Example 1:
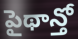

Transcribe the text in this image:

పైథాన్తో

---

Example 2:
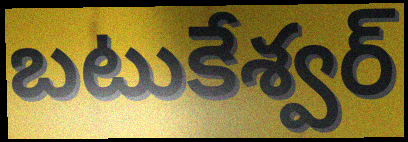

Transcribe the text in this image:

బటుకేశ్వర్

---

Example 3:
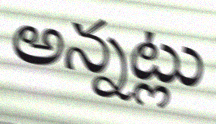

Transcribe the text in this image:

అన్నట్లు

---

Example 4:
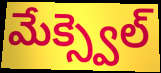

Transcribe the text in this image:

మేక్స్వెల్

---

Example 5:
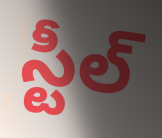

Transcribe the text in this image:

స్టీల్